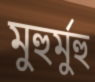
মুহুর্মুহু